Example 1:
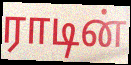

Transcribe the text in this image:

ராடின்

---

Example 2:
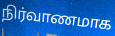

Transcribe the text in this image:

நிர்வாணமாக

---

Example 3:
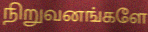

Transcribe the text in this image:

நிறுவனங்களே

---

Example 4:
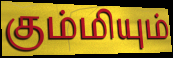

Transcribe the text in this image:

கும்மியும்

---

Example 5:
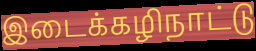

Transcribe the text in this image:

இடைக்கழிநாட்டு